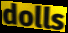
dolls